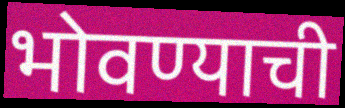
भोवण्याची